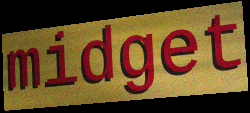
midget